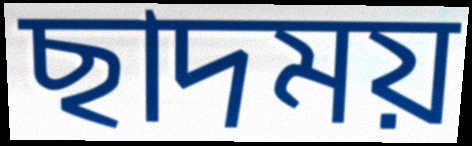
ছাদময়